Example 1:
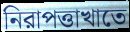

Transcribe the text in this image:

নিরাপত্তাখাতে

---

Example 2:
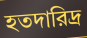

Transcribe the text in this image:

হতদারিদ্র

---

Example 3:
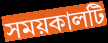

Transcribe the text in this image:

সময়কালটি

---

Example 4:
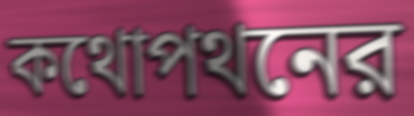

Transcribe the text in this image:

কথোপথনের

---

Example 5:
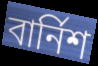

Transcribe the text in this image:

বার্নিশ